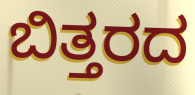
ಬಿತ್ತರದ